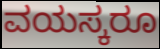
ವಯಸ್ಕರೂ